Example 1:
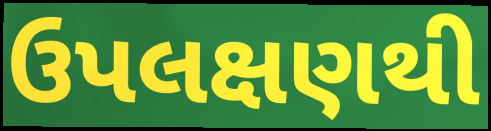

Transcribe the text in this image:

ઉપલક્ષણથી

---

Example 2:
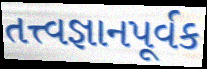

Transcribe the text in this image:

તત્ત્વજ્ઞાનપૂર્વક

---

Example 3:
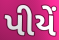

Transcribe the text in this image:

પીયેં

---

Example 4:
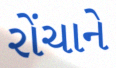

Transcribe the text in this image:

રોંચાને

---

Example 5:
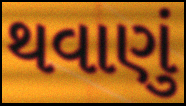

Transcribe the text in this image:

થવાણું